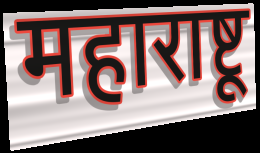
महाराष्टू